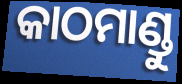
କାଠମାଣ୍ଡୁ